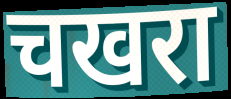
चखरा